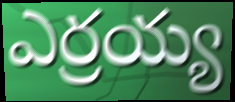
ఎర్రయ్య